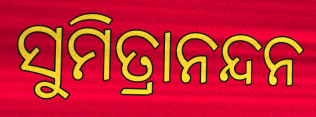
ସୁମିତ୍ରାନନ୍ଦନ